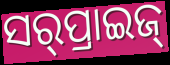
ସର୍‌ପ୍ରାଇଜ୍